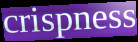
crispness